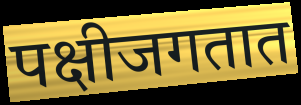
पक्षीजगतात